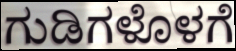
ಗುಡಿಗಳೊಳಗೆ